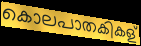
കൊലപാതകികള്